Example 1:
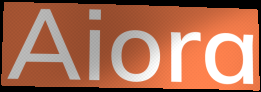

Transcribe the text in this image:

Aiora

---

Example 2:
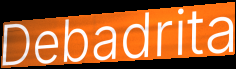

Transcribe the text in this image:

Debadrita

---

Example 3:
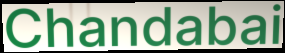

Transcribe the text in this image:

Chandabai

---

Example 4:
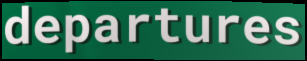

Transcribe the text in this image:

departures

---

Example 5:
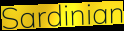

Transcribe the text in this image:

Sardinian